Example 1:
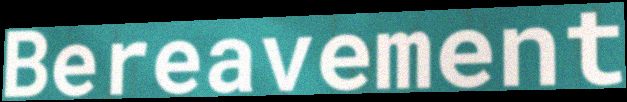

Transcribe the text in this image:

Bereavement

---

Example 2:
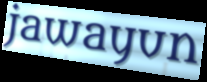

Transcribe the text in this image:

jawayun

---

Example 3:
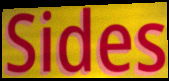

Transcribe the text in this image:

Sides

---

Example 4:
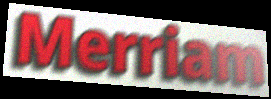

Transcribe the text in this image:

Merriam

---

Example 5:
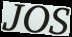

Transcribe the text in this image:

JOS